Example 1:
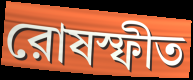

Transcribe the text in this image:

রোষস্ফীত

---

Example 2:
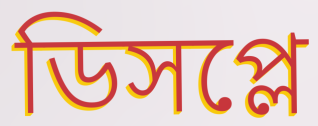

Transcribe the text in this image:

ডিসপ্লে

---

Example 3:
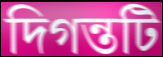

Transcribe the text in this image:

দিগন্তটি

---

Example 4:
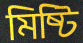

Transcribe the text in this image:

মিষ্টি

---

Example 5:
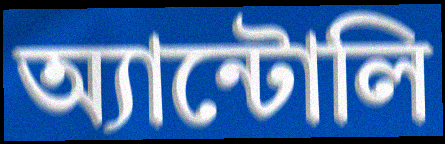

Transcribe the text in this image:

অ্যান্টোলি